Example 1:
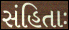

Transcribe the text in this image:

સંહિતાઃ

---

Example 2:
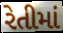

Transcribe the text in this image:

રેતીમાં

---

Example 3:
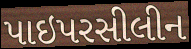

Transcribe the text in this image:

પાઇપરસીલીન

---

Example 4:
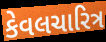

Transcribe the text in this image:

કેવલચારિત્ર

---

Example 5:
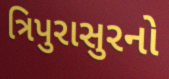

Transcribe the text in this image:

ત્રિપુરાસુરનો